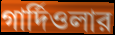
গার্দিওলার